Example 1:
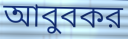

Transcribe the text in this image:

আবুবকর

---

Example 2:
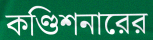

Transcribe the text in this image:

কণ্ডিশনারের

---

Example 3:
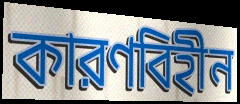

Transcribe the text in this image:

কারণবিহীন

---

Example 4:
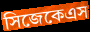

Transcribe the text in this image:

সিজেকেএস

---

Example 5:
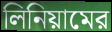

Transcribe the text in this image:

লিনিয়ামের